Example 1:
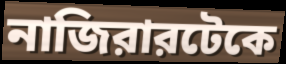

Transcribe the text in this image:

নাজিরারটেকে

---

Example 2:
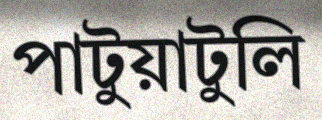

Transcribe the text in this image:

পাটুয়াটুলি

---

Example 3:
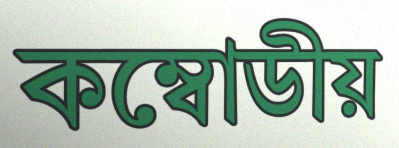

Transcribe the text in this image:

কম্বোডীয়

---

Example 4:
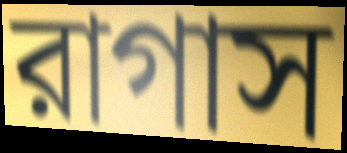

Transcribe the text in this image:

রাগাস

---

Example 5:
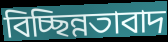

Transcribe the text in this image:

বিচ্ছিন্নতাবাদ